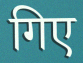
गिए